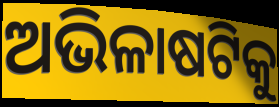
ଅଭିଳାଷଟିକୁ